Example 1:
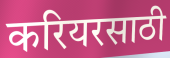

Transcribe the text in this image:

करियरसाठी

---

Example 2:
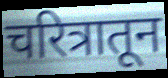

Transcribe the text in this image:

चरित्रातून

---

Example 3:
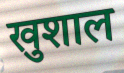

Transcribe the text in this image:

खुशाल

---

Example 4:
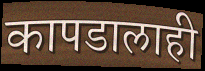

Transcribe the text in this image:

कापडालाही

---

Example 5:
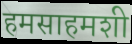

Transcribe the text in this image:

हमसाहमशी